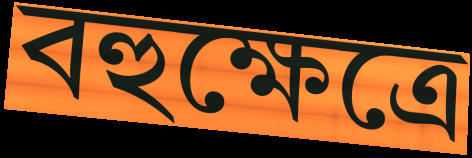
বহুক্ষেত্রে